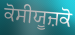
ਕੋਸੀਯੂਜ਼ਕੋ